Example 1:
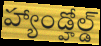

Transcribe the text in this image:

హ్యాండ్హోల్డ్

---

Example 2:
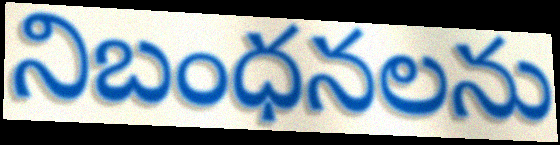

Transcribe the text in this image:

నిబంధనలను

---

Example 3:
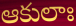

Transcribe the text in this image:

ఆకులాః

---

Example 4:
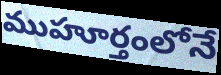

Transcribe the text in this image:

ముహూర్తంలోనే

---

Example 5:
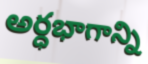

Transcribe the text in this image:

అర్ధభాగాన్ని